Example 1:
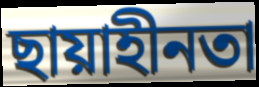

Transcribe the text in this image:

ছায়াহীনতা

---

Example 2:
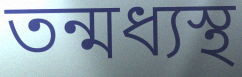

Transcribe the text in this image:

তন্মধ্যস্থ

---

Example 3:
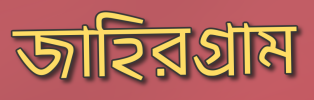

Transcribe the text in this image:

জাহিরগ্রাম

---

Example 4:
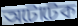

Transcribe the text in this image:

অটোটেক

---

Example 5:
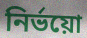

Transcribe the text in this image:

নির্ভয়ো